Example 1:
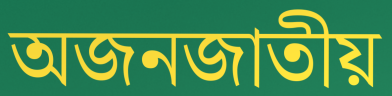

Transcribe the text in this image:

অজনজাতীয়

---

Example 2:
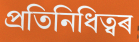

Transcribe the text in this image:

প্ৰতিনিধিত্বৰ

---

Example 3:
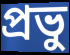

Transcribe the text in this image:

প্ৰভু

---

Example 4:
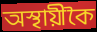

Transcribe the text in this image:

অস্থায়ীকৈ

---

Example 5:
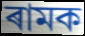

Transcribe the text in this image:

ৰামক